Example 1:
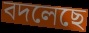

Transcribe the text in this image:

বদলেছে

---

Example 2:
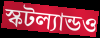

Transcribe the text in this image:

স্কটল্যান্ডও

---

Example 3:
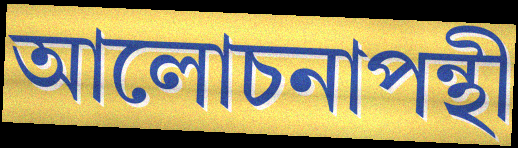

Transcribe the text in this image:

আলোচনাপন্থী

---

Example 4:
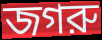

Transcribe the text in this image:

জগরু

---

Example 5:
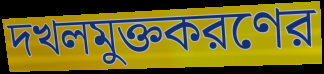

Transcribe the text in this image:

দখলমুক্তকরণের